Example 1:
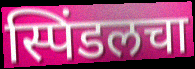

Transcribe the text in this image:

स्पिंडलचा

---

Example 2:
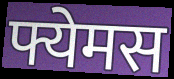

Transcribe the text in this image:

फ्येमस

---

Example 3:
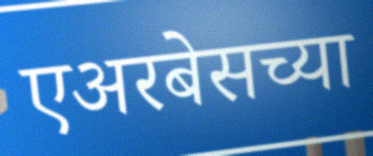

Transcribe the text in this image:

एअरबेसच्या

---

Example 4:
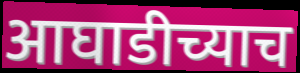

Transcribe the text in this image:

आघाडीच्याच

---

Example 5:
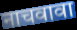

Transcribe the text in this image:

नाचवावा